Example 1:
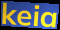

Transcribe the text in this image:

keia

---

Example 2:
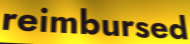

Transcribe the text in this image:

reimbursed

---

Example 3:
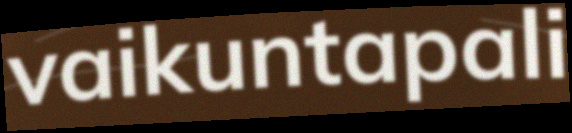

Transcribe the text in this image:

vaikuntapali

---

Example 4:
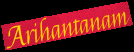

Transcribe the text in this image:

Arihantanam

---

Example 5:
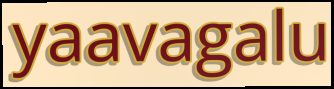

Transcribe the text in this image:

yaavagalu